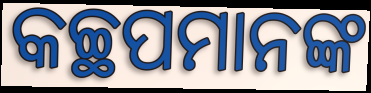
କଚ୍ଛପମାନଙ୍କ